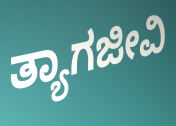
ತ್ಯಾಗಜೀವಿ